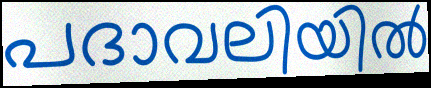
പദാവലിയിൽ